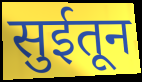
सुईतून